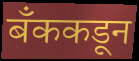
बँककडून